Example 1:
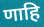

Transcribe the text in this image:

णाहि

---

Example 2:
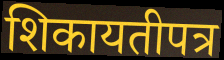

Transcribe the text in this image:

शिकायतीपत्र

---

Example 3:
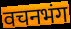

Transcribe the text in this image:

वचनभंग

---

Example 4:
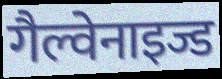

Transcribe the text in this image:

गैल्वेनाइज्ड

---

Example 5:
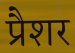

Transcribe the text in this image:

प्रैशर